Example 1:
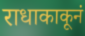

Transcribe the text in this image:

राधाकाकूनं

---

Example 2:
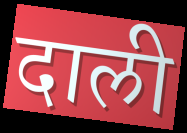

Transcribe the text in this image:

दाली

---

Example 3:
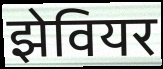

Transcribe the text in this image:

झेवियर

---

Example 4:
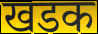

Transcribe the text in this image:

खडक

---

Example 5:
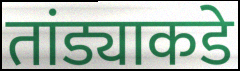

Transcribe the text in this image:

तांड्याकडे